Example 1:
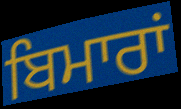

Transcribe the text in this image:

ਬਿਮਾਰਾਂ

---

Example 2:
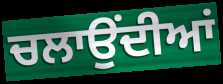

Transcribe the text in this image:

ਚਲਾਉਂਦੀਆਂ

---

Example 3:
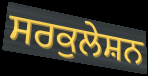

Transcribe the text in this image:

ਸਰਕੁਲੇਸ਼ਨ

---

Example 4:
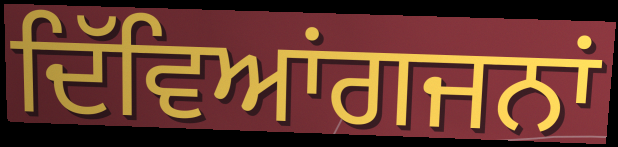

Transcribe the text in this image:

ਦਿੱਵਿਆਂਗਜਨਾਂ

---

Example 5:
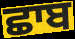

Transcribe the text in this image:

ਛਾਬ